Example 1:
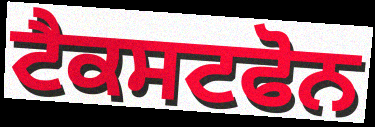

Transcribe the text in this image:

ਟੈਕਸਟਫੋਨ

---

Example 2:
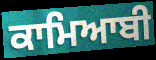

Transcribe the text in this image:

ਕਾਮਿਆਬੀ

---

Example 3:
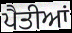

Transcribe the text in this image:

ਪੈਤੀਆਂ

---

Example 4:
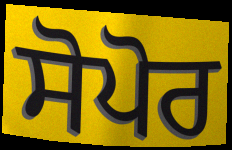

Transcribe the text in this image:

ਸੋਪੋਰ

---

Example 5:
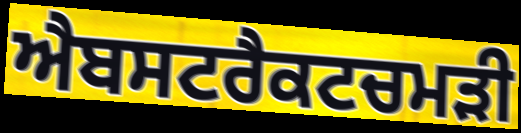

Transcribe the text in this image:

ਐਬਸਟਰੈਕਟਚਮੜੀ